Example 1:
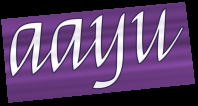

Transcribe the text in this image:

aayu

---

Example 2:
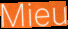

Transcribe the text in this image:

Mieu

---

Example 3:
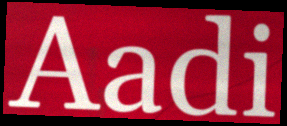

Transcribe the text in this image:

Aadi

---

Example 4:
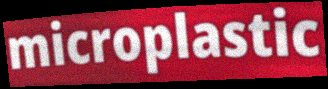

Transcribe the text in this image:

microplastic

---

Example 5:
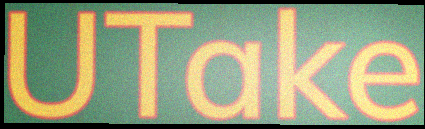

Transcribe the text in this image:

UTake